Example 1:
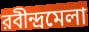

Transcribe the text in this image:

রবীন্দ্রমেলা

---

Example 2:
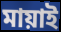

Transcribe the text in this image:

মায়াই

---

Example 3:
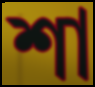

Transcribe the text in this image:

শা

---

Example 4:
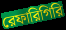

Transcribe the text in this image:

রেফারিগিরি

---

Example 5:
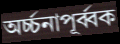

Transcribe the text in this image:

অর্চ্চনাপূর্ব্বক